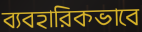
ব্যবহারিকভাবে